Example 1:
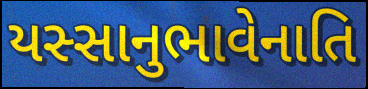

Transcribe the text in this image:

યસ્સાનુભાવેનાતિ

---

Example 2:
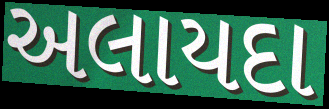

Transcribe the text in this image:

અલાયદા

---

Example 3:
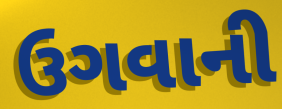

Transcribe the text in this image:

ઉગવાની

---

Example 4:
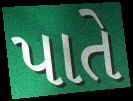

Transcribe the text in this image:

પાતે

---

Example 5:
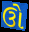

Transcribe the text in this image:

ઉો